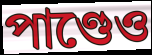
পাণ্ডেও